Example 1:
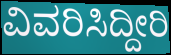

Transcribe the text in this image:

ವಿವರಿಸಿದ್ದೀರಿ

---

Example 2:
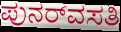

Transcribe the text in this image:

ಪುನರ್‌ವಸತಿ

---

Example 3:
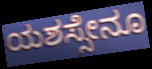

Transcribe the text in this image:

ಯಶಸ್ಸೇನೂ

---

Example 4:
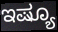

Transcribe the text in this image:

ಇಷ್ಯೂ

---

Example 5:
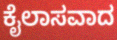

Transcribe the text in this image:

ಕೈಲಾಸವಾದ